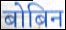
बोबिन